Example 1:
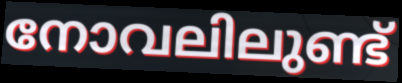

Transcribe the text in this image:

നോവലിലുണ്ട്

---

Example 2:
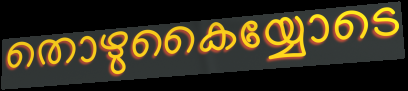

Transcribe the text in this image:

തൊഴുകൈയ്യോടെ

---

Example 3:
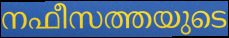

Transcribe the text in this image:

നഫീസത്തയുടെ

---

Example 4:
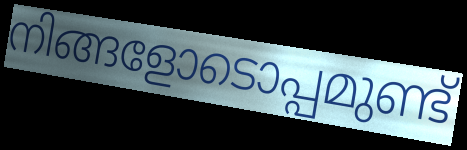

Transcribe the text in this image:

നിങ്ങളോടൊപ്പമുണ്ട്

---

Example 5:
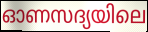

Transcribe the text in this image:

ഓണസദ്യയിലെ